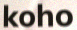
koho